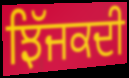
ਝਿੱਜਕਦੀ